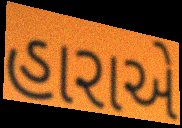
હારાએ